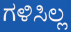
ಗಳಿಸಿಲ್ಲ